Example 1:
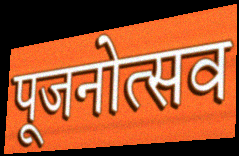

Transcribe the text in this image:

पूजनोत्सव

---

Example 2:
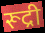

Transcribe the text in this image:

रूद्री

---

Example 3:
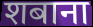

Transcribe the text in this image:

शबाना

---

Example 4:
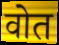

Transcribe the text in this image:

वोत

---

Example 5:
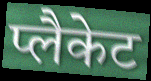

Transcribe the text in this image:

प्लैकेट